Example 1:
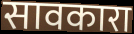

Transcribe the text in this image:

सावकारा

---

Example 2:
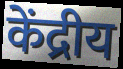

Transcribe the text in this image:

केंद्रीय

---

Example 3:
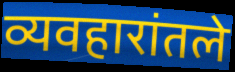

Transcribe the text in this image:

व्यवहारांतले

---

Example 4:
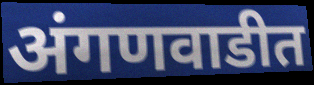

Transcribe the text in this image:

अंगणवाडीत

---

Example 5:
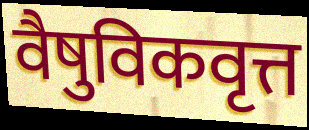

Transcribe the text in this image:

वैषुविकवृत्त